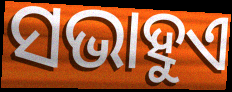
ସଭାହୁଏ